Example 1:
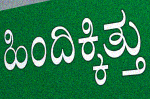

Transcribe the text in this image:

ಹಿಂದಿಕ್ಕಿತ್ತು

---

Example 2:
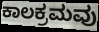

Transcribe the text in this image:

ಕಾಲಕ್ರಮವು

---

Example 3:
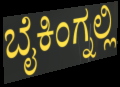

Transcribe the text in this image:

ಬೈಕಿಂಗ್ನಲ್ಲಿ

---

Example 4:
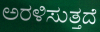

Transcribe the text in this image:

ಅರಳಿಸುತ್ತದೆ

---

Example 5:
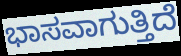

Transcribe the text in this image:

ಭಾಸವಾಗುತ್ತಿದೆ